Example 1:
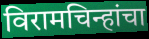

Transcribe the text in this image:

विरामचिन्हांचा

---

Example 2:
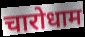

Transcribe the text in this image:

चारोधाम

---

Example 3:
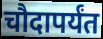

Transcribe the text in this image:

चौदापर्यंत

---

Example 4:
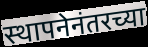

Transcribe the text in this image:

स्थापनेनंतरच्या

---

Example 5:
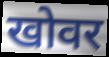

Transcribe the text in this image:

खोवर